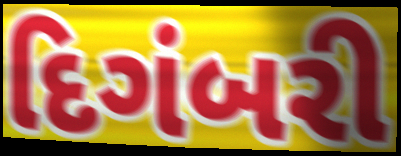
દિગંબરી